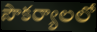
సౌకర్యాలలో